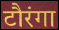
टौरंगा